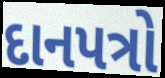
દાનપત્રો